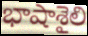
భాషాశైలి